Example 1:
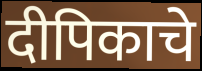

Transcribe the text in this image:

दीपिकाचे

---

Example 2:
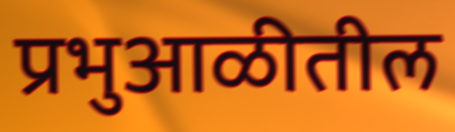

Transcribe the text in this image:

प्रभुआळीतील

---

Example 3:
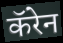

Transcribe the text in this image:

कॅरेन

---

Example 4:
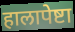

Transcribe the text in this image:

हालापेष्टा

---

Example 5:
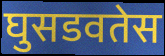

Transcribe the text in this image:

घुसडवतेस